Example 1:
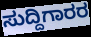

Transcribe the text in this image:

ಸುದ್ದಿಗಾರರ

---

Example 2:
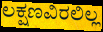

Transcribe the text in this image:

ಲಕ್ಷಣವಿರಲಿಲ್ಲ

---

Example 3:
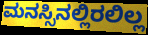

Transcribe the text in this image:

ಮನಸ್ಸಿನಲ್ಲಿರಲಿಲ್ಲ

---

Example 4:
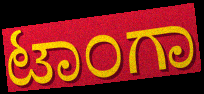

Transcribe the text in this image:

ಟಾಂಗಾ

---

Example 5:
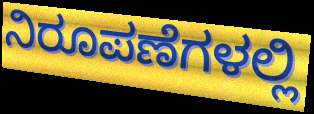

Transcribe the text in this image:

ನಿರೂಪಣೆಗಳಲ್ಲಿ